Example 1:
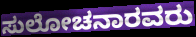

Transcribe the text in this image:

ಸುಲೋಚನಾರವರು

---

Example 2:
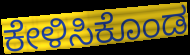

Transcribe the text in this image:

ಕೇಳಿಸಿಕೊಂಡ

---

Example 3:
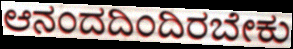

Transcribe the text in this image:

ಆನಂದದಿಂದಿರಬೇಕು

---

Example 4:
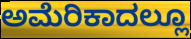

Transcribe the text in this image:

ಅಮೆರಿಕಾದಲ್ಲೂ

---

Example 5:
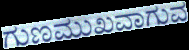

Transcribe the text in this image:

ಗುಣಮುಖವಾಗುವ